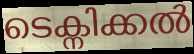
ടെക്നിക്കൽ